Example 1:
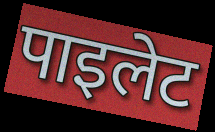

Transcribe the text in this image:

पाइलेट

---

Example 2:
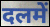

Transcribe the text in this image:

दलमें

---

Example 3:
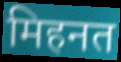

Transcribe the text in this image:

मिहनत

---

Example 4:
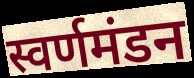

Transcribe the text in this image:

स्वर्णमंडन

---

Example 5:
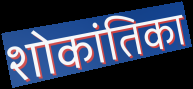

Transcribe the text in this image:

शोकांतिका